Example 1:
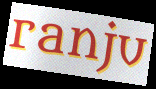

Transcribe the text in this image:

ranju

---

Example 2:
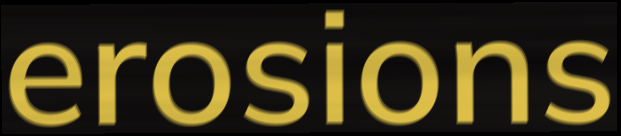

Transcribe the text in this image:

erosions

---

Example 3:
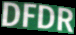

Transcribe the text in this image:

DFDR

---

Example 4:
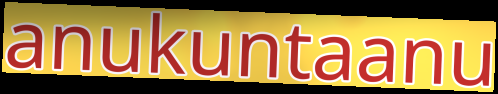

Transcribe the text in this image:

anukuntaanu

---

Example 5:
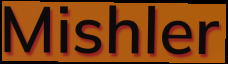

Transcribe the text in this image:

Mishler